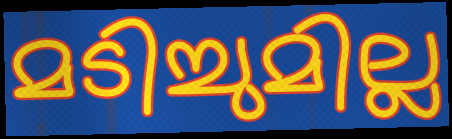
മടിച്ചുമില്ല